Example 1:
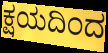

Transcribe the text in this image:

ಕ್ಷಯದಿಂದ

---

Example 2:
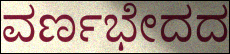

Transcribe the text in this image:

ವರ್ಣಭೇದದ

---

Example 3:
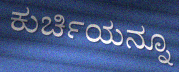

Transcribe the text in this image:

ಕುರ್ಚಿಯನ್ನೂ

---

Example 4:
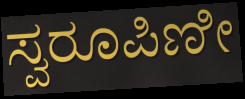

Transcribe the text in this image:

ಸ್ವರೂಪಿಣೀ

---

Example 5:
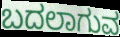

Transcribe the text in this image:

ಬದಲಾಗುವ